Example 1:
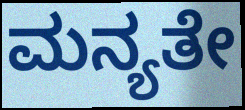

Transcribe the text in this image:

ಮನ್ಯತೇ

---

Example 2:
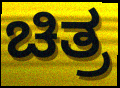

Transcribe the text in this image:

ಚಿತ್ರ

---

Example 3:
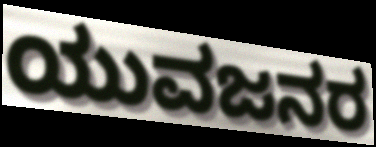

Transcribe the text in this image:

ಯುವಜನರ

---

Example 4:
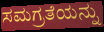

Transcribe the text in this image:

ಸಮಗ್ರತೆಯನ್ನು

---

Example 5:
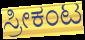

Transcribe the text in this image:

ಸ್ರೀಕಂಟ